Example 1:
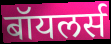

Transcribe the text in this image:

बॉयलर्स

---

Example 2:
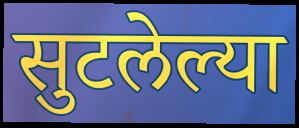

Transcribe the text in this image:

सुटलेल्या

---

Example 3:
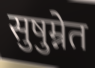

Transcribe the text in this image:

सुषुम्नेत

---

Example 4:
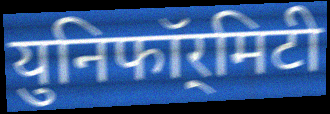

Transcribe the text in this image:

युनिफॉर्मिटी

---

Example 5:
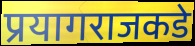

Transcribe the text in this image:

प्रयागराजकडे